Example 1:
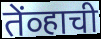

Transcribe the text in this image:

तेंव्हाची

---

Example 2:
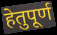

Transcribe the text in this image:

हेतुपूर्ण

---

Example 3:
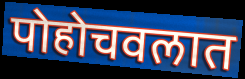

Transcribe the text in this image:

पोहोचवलात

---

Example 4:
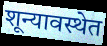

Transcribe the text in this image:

शून्यावस्थेत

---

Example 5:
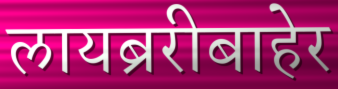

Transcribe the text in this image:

लायब्ररीबाहेर